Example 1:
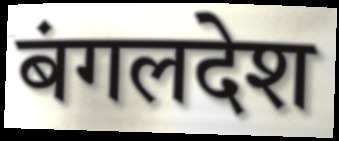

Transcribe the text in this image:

बंगलदेश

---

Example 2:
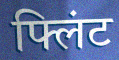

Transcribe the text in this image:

फ्लिंट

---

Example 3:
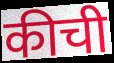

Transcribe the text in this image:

कीची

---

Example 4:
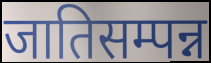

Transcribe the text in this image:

जातिसम्पन्न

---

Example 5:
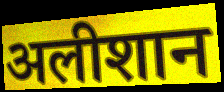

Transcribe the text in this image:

अलीशान